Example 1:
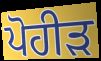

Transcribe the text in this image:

ਪੋਹੀੜ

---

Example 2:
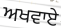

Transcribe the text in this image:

ਅਖਵਾਏ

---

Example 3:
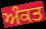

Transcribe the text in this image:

ਅੰਕਤ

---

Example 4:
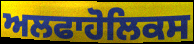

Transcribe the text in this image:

ਅਲਫਾਹੋਲਿਕਸ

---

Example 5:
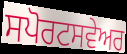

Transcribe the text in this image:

ਸਪੋਰਟਸਵੇਅਰ